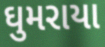
ઘુમરાયા